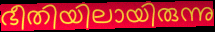
ഭീതിയിലായിരുന്നു